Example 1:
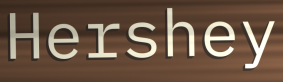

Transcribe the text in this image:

Hershey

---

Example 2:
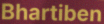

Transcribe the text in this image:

Bhartiben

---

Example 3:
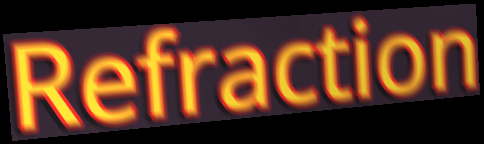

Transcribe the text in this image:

Refraction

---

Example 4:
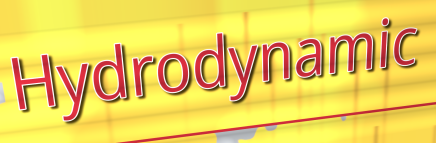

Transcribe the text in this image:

Hydrodynamic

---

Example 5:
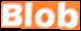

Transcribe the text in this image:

Blob